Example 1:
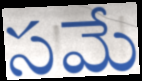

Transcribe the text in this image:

సమే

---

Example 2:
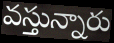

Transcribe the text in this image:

వస్తున్నారు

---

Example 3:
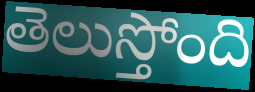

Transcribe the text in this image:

తెలుస్తోంది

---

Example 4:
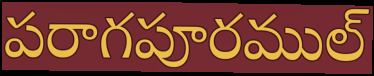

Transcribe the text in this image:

పరాగపూరముల్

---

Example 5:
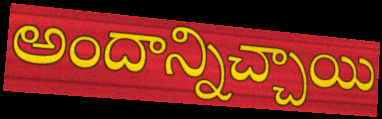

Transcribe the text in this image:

అందాన్నిచ్చాయి